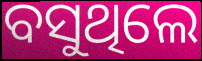
ବସୁଥିଲେ